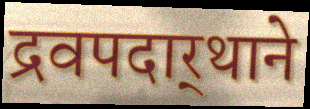
द्रवपदार्थाने